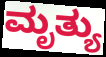
ಮೃತ್ಯು